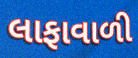
લાફાવાળી